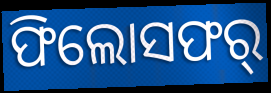
ଫିଲୋସଫର୍